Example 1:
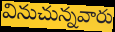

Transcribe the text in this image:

వినుచున్నవారు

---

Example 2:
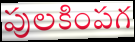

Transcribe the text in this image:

పులకింపగ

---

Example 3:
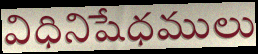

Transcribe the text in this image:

విధినిషేధములు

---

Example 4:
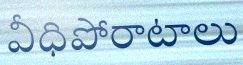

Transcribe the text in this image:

వీధిపోరాటాలు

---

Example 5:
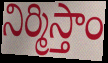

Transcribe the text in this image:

నిర్మిస్తాం